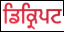
ਡਿਕ੍ਰਿਪਟ